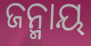
ଜନ୍ମାୟ